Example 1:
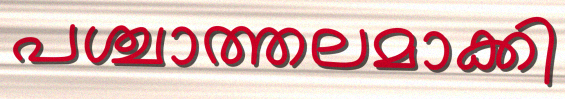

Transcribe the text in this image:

പശ്ചാത്തലമാക്കി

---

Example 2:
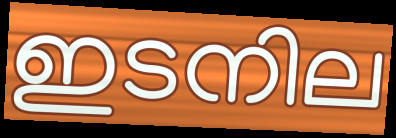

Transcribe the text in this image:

ഇടനില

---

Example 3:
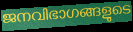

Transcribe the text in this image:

ജനവിഭാഗങ്ങളുടെ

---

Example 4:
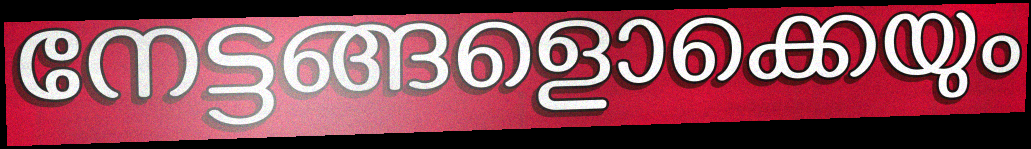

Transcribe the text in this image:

നേട്ടങ്ങളൊക്കെയും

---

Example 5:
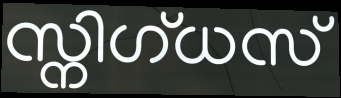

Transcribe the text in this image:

സ്നിഗ്ധസ്